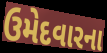
ઉમેદવારના